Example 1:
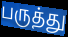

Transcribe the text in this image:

பருத்து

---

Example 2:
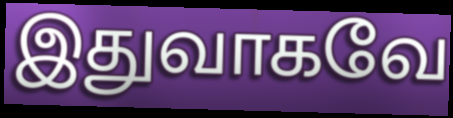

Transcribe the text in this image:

இதுவாகவே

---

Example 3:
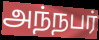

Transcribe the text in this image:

அந்நபர்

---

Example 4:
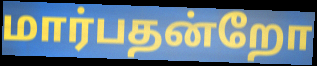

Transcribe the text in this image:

மார்பதன்றோ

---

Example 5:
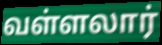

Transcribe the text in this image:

வள்ளலார்